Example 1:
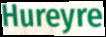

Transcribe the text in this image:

Hureyre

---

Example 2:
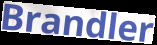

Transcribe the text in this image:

Brandler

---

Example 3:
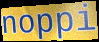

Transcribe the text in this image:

noppi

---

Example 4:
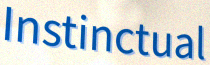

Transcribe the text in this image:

Instinctual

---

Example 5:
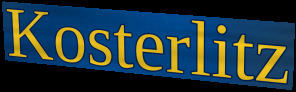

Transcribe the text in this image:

Kosterlitz